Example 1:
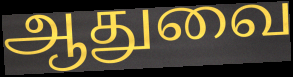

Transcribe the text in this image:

ஆதுவை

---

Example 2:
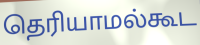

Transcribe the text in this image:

தெரியாமல்கூட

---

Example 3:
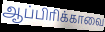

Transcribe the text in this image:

ஆப்பிரிக்காவை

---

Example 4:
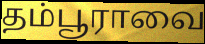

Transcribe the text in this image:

தம்பூராவை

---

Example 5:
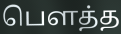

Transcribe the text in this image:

பெளத்த